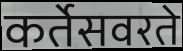
कर्तेसवरते